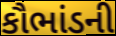
કૌભાંડની